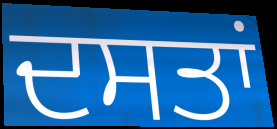
ਦਸਤਾਂ